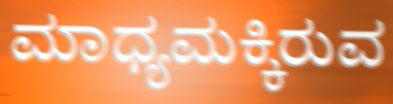
ಮಾಧ್ಯಮಕ್ಕಿರುವ